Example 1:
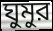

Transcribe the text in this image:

ঘুমুর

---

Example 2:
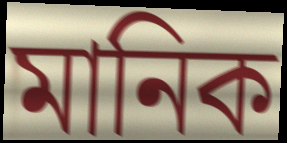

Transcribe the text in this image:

মানিক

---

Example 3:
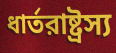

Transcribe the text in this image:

ধার্তরাষ্ট্রস্য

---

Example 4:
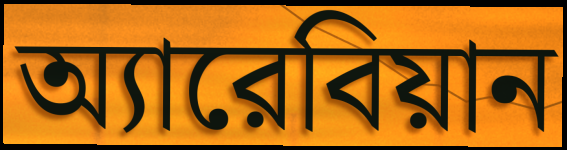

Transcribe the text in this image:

অ্যারেবিয়ান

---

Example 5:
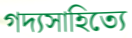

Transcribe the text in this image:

গদ্যসাহিত্যে